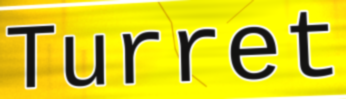
Turret